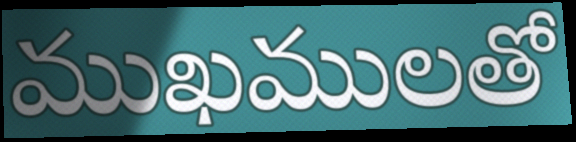
ముఖములతో